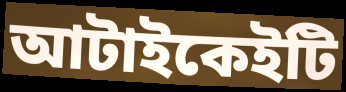
আটাইকেইটি